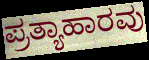
ಪ್ರತ್ಯಾಹಾರವು